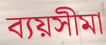
ব্যয়সীমা